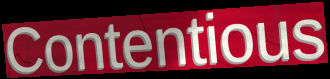
Contentious